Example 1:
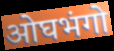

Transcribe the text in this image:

ओघभंगो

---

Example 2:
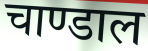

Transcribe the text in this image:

चाण्डाल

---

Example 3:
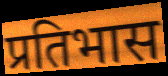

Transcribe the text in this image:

प्रतिभास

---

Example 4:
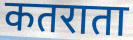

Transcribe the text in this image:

कतराता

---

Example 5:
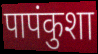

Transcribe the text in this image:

पापंकुशा